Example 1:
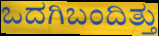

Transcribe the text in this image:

ಒದಗಿಬಂದಿತ್ತು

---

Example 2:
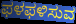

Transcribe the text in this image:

ಫಳಫಳಿಸುವ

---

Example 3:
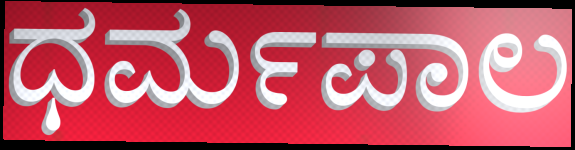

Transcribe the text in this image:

ಧರ್ಮಪಾಲ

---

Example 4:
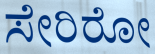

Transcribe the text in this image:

ಸೇರಿರೋ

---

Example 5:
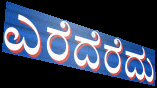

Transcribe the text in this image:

ಎರೆದೆರೆದು